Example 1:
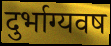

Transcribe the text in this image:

दुर्भाग्यवष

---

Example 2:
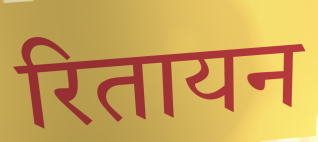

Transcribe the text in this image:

रितायन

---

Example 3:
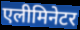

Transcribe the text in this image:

एलीमिनेटर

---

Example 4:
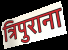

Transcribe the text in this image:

त्रिपुराना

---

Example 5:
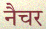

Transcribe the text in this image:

नैचर